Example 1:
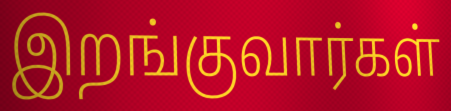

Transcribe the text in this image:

இறங்குவார்கள்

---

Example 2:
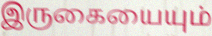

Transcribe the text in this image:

இருகையையும்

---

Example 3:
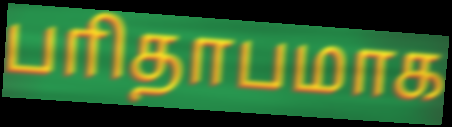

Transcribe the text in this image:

பரிதாபமாக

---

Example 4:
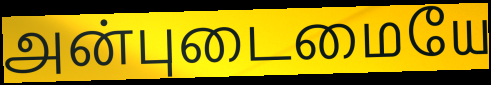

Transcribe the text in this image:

அன்புடைமையே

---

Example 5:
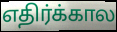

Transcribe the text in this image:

எதிர்க்கால